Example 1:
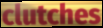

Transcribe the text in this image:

clutches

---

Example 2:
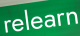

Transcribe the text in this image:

relearn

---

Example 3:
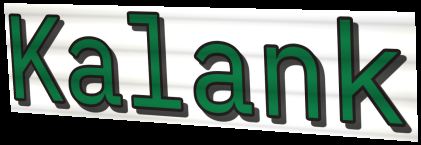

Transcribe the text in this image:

Kalank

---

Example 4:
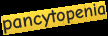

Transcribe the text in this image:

pancytopenia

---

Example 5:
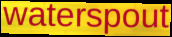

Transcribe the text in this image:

waterspout